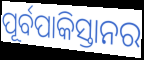
ପୂର୍ବପାକିସ୍ତାନର